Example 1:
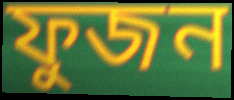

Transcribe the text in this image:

ফুজন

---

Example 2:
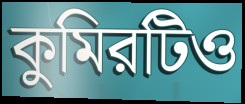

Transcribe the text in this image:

কুমিরটিও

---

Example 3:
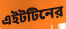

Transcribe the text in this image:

এইটটিনের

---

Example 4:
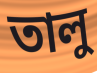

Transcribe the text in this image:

তালু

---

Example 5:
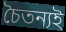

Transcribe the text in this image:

চৈতন্যই